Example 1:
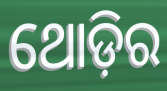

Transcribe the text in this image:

ଥୋଡ଼ିର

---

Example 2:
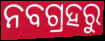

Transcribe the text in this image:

ନବଗ୍ରହରୁ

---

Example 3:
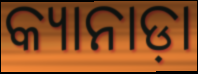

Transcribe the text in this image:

କ୍ୟାନାଡ଼ା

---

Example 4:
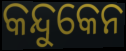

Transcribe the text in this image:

କନ୍ଦୁକେନ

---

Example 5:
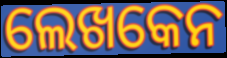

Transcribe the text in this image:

ଲେଖକେନ